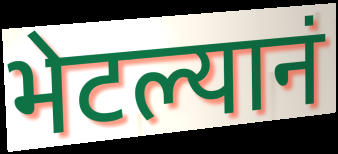
भेटल्यानं